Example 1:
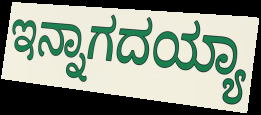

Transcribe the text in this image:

ಇನ್ನಾಗದಯ್ಯಾ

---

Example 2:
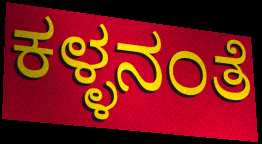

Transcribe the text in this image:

ಕಳ್ಳನಂತೆ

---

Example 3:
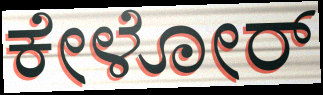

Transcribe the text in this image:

ಕೇಳೋರ್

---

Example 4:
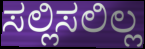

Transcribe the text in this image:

ಸಲ್ಲಿಸಲಿಲ್ಲ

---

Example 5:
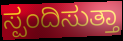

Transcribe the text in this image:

ಸ್ಪಂದಿಸುತ್ತಾ